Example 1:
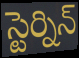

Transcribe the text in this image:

స్టెర్నిన్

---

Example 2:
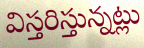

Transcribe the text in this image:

విస్తరిస్తున్నట్లు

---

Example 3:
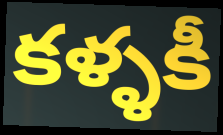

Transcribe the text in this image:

కళ్ళకీ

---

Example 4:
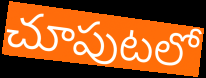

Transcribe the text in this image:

చూపుటలో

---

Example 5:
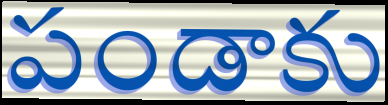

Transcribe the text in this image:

పండాకు